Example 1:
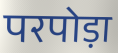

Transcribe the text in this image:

परपोड़ा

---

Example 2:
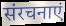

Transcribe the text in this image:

संरचनाएं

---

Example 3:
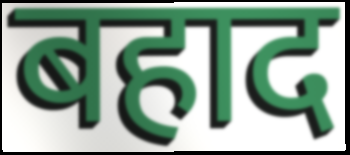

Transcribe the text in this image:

बहाद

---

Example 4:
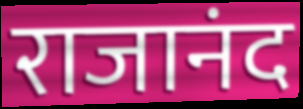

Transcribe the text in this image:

राजानंद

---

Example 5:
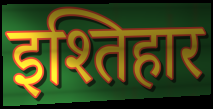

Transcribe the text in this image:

इश्तिहार